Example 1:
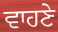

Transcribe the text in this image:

ਵਾਹਣੇ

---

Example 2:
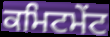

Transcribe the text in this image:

ਕਮਿਟਮੇਂਟ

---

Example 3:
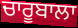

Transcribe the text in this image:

ਚਾਰੂਬਾਲਾ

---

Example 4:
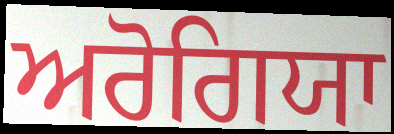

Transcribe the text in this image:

ਅਰੋਗਿਯਾ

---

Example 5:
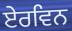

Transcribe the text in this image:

ਏਰਵਿਨ